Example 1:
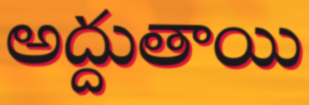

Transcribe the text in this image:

అద్దుతాయి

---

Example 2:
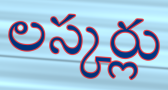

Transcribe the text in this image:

లస్కర్లు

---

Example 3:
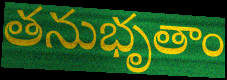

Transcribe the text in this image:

తనుభృతాం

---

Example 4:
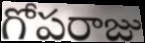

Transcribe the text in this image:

గోపరాజు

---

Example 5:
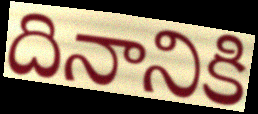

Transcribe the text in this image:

దినానికి